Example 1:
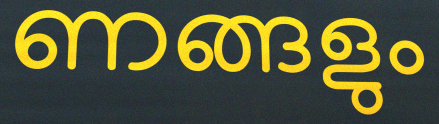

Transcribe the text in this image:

ണങ്ങളും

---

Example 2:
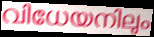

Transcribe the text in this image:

വിധേയനിലും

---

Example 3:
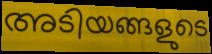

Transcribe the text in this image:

അടിയങ്ങളുടെ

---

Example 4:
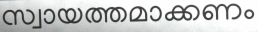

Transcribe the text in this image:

സ്വായത്തമാക്കണം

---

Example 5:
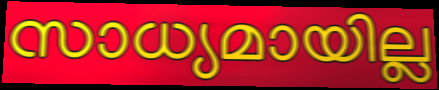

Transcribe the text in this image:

സാധ്യമായില്ല